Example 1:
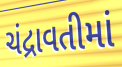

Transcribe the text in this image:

ચંદ્રાવતીમાં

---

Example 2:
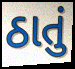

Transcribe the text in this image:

ઠાતું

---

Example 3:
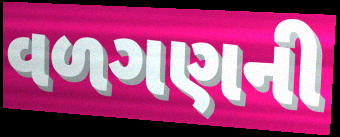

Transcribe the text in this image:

વળગણની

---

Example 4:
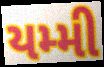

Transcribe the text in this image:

યમ્મી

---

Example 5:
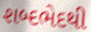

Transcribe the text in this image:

શબ્દભેદથી